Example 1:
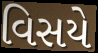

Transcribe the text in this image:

વિસયે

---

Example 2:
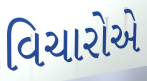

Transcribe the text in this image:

વિચારોએ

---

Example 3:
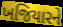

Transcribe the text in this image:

ખજિયારને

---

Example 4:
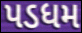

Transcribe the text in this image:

પડધમ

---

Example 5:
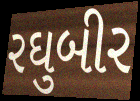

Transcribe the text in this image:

રઘુબીર